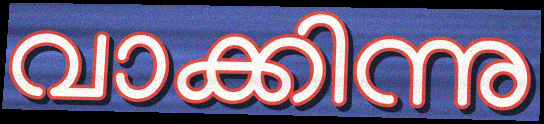
വാക്കിന്നു